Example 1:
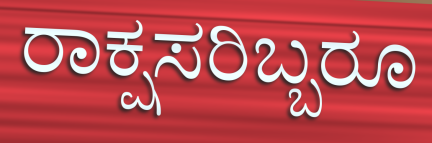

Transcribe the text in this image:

ರಾಕ್ಷಸರಿಬ್ಬರೂ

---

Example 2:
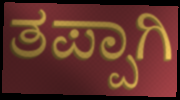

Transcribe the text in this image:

ತಪ್ಪಾಗಿ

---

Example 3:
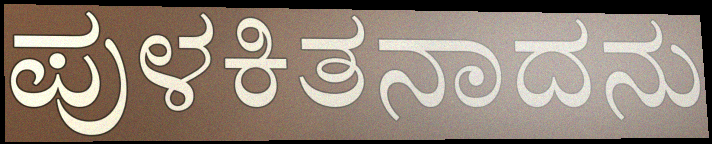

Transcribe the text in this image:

ಪುಳಕಿತನಾದನು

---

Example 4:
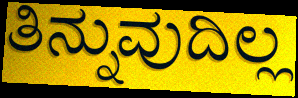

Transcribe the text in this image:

ತಿನ್ನುವುದಿಲ್ಲ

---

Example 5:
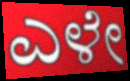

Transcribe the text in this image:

ಎಳೇ